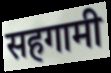
सहगामी